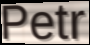
Petr